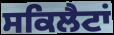
ਸਕਿਲੈਟਾਂ